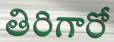
తిరిగారో